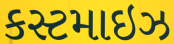
કસ્ટમાઇઝ